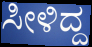
ಸೀಳಿದ್ದ